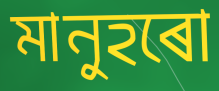
মানুহৰো